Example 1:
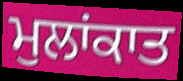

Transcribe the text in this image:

ਮੁਲਾਂਕਾਤ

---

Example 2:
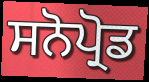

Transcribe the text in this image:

ਸਨੋਪ੍ਰੋਡ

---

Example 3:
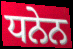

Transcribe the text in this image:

ਧਨੇਨ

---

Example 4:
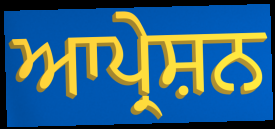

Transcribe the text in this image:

ਆਪ੍ਰੇਸ਼ਨ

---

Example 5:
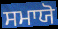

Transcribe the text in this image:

ਸਮਾਯੋ